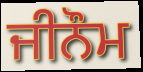
ਜੀਨੌਮ